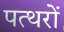
पत्‍थरों